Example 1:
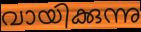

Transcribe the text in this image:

വായിക്കുന്നു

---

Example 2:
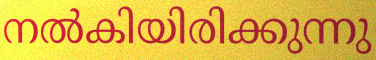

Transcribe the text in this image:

നൽകിയിരിക്കുന്നു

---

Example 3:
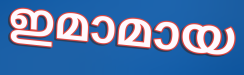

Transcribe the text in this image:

ഇമാമായ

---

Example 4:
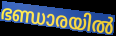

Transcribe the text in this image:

ഭണ്ഡാരയിൽ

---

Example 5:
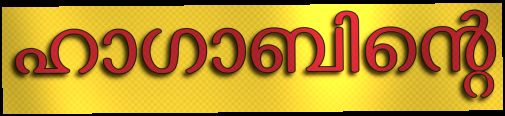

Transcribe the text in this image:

ഹാഗാബിന്റെ